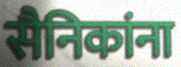
सैनिकांना